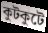
কুটকুটে